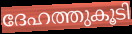
ദേഹത്തുകൂടി